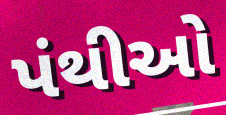
પંથીઓ